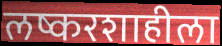
लष्करशाहीला